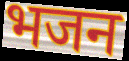
भजन